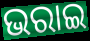
ଭରାଇ